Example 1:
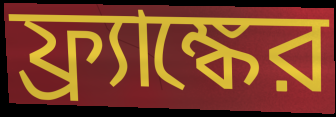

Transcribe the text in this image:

ফ্র্যাঙ্কের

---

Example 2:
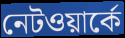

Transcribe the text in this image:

নেটওয়ার্কে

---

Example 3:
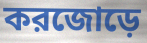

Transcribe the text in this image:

করজোড়ে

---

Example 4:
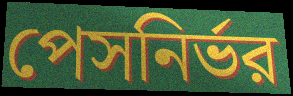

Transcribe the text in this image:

পেসনির্ভর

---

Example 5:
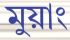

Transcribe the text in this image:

মুয়াং